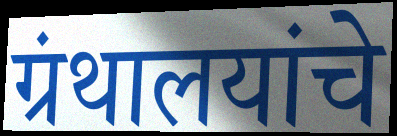
ग्रंथालयांचे